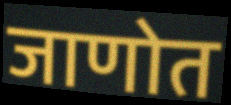
जाणोत